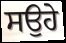
ਸਉਹੇ